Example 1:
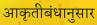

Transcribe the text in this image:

आकृतीबंधानुसार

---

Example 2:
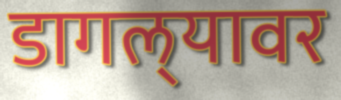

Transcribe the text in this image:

डागल्यावर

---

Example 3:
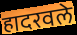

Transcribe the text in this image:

हादरवले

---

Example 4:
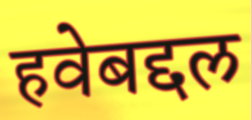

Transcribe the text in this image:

हवेबद्दल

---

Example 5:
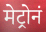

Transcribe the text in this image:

मेट्रोनं